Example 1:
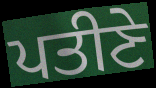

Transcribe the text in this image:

ਪਤੀਣੇ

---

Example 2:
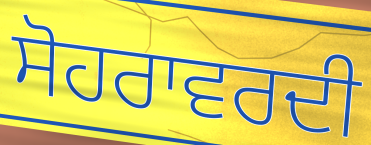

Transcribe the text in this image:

ਸੋਹਰਾਵਰਦੀ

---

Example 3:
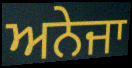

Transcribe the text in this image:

ਅਨੇਜਾ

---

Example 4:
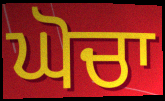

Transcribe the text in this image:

ਘੋਚਾ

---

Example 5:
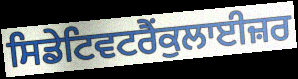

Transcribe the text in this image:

ਸਿਡੇਟਿਵਟਰੈਂਕੁਲਾਈਜ਼ਰ